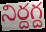
నిర్దగ్ద